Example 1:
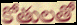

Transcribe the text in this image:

కోతులతో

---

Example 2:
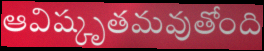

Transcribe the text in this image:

ఆవిష్కృతమవుతోంది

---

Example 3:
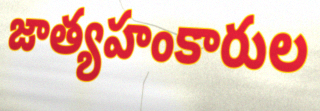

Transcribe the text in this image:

జాత్యహంకారుల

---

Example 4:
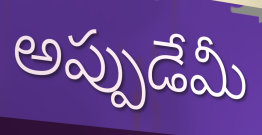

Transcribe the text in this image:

అప్పుడేమీ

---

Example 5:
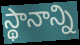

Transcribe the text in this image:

స్థానాన్ని